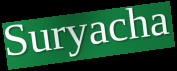
Suryacha